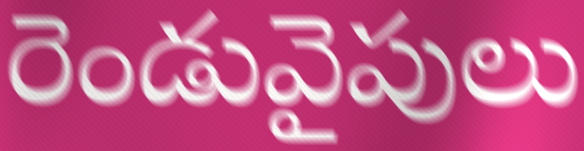
రెండువైపులు